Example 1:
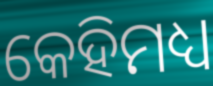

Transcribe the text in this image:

କେହିମଧ୍ୟ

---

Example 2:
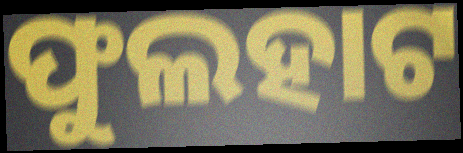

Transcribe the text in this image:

ଫୁଲହାଟ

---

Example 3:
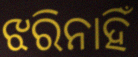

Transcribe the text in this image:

ଝରିନାହିଁ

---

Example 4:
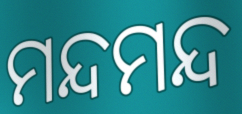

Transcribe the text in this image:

ମନ୍ଦମନ୍ଦ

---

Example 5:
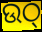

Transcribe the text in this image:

ଉଠ୍